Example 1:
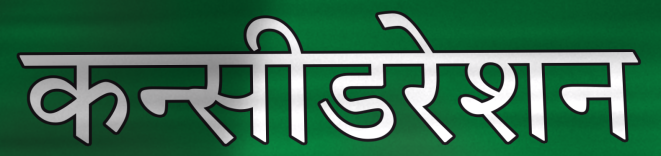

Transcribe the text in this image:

कन्सीडरेशन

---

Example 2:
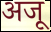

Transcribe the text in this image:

अजू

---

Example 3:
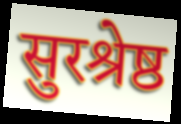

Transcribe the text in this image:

सुरश्रेष्ठ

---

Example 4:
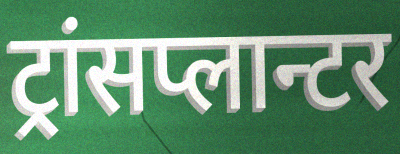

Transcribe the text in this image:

ट्रांसप्लान्टर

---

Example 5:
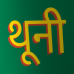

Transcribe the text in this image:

थूनी